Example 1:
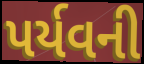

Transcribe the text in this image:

પર્યવની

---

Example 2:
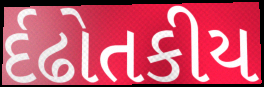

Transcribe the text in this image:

ર્દઢોતકીય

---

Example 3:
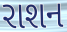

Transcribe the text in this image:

રાશન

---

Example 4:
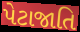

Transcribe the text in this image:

પેટાજાતિ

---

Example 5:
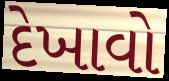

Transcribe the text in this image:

દેખાવો